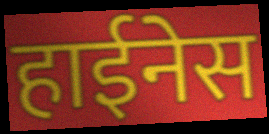
हाईनेस